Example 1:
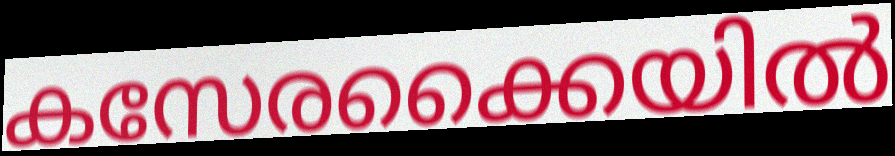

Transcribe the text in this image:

കസേരക്കൈയിൽ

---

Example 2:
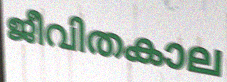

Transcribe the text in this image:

ജീവിതകാല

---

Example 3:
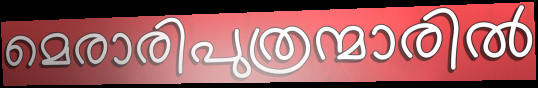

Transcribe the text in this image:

മെരാരിപുത്രന്മാരിൽ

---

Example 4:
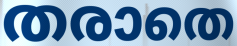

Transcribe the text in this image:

തരാതെ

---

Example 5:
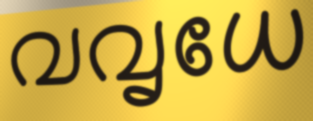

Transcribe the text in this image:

വവൃധേ